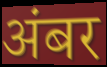
अंबर